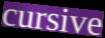
cursive